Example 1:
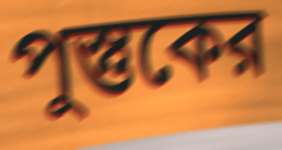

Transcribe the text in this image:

পুস্তুকের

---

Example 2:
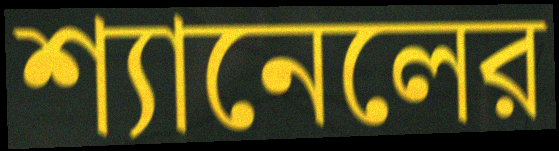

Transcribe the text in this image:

শ্যানেলের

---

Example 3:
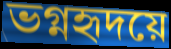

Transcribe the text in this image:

ভগ্নহৃদয়ে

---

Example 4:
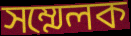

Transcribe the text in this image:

সম্মেলক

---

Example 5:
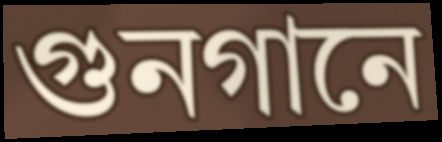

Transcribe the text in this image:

গুনগানে